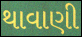
થાવાણી